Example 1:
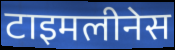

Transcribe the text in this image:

टाइमलीनेस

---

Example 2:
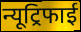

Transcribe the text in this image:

न्यूट्रिफाई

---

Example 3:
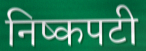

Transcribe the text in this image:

निष्कपटी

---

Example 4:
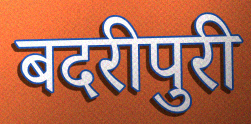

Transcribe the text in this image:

बदरीपुरी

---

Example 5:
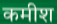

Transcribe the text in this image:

कमीश